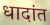
धादांत